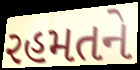
રહમતને